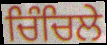
ਚਿੰਚਿਲੇ